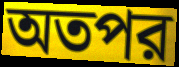
অতপর